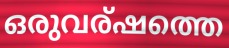
ഒരുവര്ഷത്തെ